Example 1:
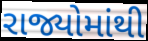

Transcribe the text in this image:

રાજ્યોમાંથી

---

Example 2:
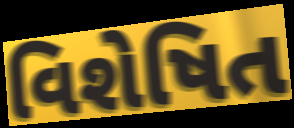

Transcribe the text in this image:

વિશેષિત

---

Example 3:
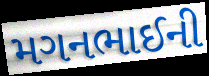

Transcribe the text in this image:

મગનભાઈની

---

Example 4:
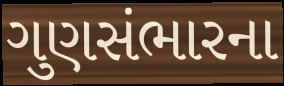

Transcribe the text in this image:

ગુણસંભારના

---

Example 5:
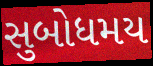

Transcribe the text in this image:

સુબોધમય